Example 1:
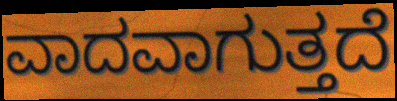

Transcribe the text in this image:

ವಾದವಾಗುತ್ತದೆ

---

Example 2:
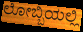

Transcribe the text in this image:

ಲೋಬ್ಬಿಯಲ್ಲಿ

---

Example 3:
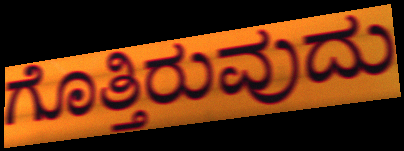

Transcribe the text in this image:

ಗೊತ್ತಿರುವುದು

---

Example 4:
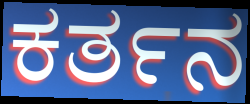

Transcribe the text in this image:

ಕರ್ತನ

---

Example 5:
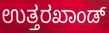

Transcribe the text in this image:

ಉತ್ತರಖಾಂಡ್